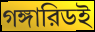
গঙ্গারিডই